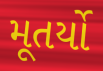
મૂતર્યો